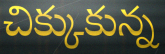
చిక్కుకున్న